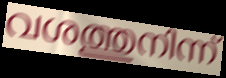
വശത്തുനിന്ന്